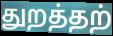
துறத்தற்